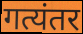
गत्यंतर